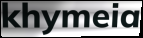
khymeia